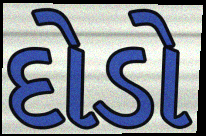
દોડો